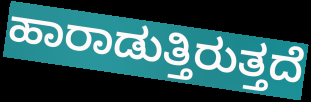
ಹಾರಾಡುತ್ತಿರುತ್ತದೆ